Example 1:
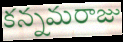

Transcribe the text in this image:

కన్నమరాజు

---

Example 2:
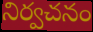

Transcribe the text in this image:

నిర్వచనం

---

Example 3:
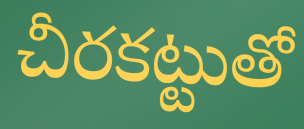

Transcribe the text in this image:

చీరకట్టుతో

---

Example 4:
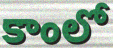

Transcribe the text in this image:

కాంలో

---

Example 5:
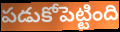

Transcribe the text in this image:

పడుకోపెట్టింది